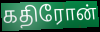
கதிரோன்